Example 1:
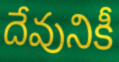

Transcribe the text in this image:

దేవునికీ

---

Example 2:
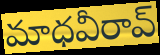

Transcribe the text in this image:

మాధవీరావ్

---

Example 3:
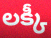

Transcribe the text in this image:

లక్కీ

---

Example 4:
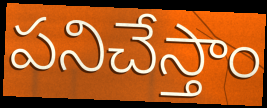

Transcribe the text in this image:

పనిచేస్తాం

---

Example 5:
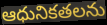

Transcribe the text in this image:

ఆధునికతలను